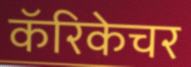
कॅरिकेचर